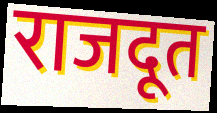
राजदूत